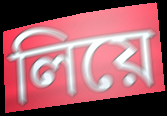
লিয়ে